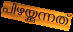
പിഴയ്ക്കുന്നത്